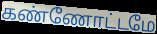
கண்ணோட்டமே